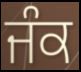
ਜੰਕ